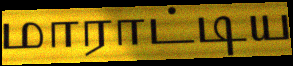
மாராட்டிய